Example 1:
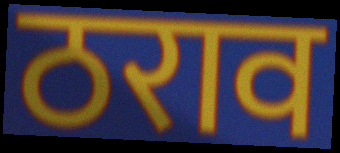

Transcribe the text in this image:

ठराव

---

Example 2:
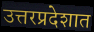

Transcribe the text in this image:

उत्तरप्रदेशात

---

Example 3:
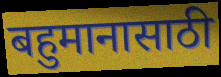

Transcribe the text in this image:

बहुमानासाठी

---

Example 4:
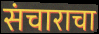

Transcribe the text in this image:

संचाराचा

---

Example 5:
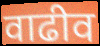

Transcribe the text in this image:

वाढीव